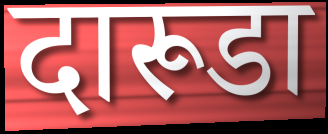
दारूडा